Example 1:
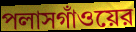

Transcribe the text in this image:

পলাসগাঁওয়ের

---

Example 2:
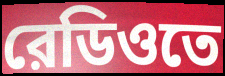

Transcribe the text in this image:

রেডিওতে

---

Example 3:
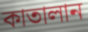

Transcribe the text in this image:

কাতালান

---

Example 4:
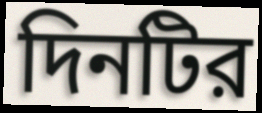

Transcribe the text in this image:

দিনটির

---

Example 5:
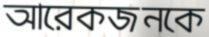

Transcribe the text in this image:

আরেকজনকে